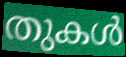
തുകൾ